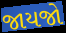
જાયજો